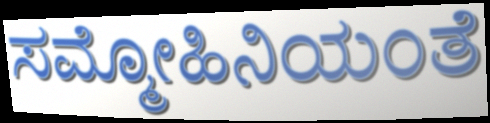
ಸಮ್ಮೋಹಿನಿಯಂತೆ